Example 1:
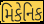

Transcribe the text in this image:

મિકેનિક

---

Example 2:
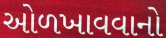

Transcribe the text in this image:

ઓળખાવવાનો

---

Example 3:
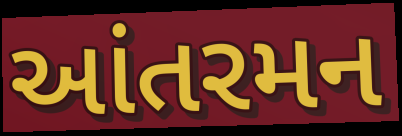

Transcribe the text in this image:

આંતરમન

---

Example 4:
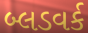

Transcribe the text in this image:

બ્લડવર્ક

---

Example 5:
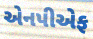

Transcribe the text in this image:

એનપીએફ